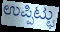
ಉಪ್ಪಿಟ್ಟು